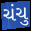
ચંચુ